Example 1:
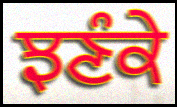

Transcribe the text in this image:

ਝਣੰਕੇ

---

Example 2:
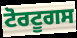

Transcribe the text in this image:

ਟੋਰਟੂਗਸ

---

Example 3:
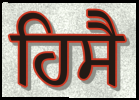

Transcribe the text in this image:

ਹਿਸੈ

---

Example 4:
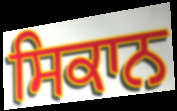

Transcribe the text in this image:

ਸਿਕਾਨ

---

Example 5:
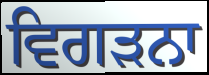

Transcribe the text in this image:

ਵਿਗੜਨਾ